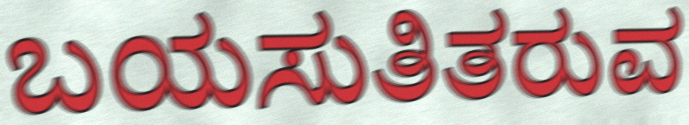
ಬಯಸುತಿತರುವ